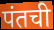
पंतची